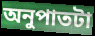
অনুপাতটা